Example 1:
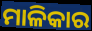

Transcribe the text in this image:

ମାଳିକାର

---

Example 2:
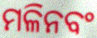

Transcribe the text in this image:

ମଳିନବଂ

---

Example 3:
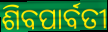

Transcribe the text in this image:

ଶିବପାର୍ବତୀ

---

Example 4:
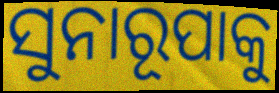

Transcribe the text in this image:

ସୁନାରୂପାକୁ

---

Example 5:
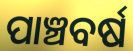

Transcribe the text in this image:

ପାଞ୍ଚବର୍ଷ